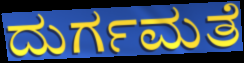
ದುರ್ಗಮತೆ